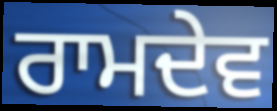
ਰਾਮਦੇਵ